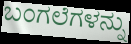
ಬಂಗಲೆಗಳನ್ನು